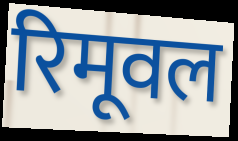
रिमूवल